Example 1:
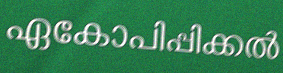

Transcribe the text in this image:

ഏകോപിപ്പിക്കൽ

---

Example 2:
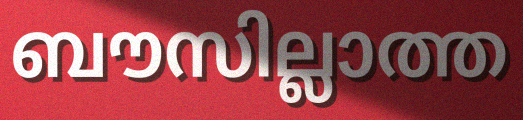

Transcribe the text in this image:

ബൗസില്ലാത്ത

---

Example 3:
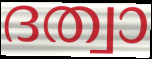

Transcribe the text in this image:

ദത്വാ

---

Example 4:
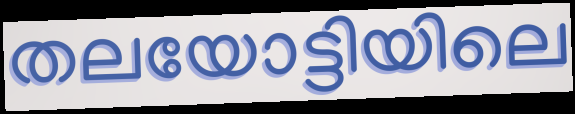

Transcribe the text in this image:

തലയോട്ടിയിലെ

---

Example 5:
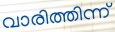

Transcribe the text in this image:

വാരിത്തിന്ന്